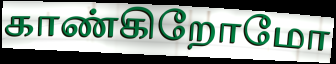
காண்கிறோமோ